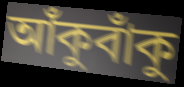
আঁকুবাঁকু